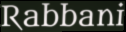
Rabbani